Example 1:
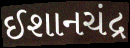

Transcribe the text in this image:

ઈશાનચંદ્ર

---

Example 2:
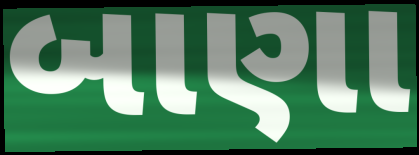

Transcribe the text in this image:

બાણા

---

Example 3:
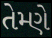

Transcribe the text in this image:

તેમ્ણે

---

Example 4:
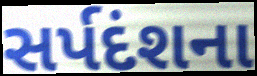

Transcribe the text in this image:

સર્પદંશના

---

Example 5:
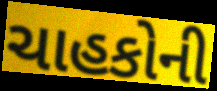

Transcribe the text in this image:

ચાહકોની